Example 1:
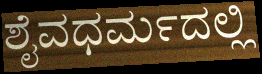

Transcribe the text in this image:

ಶೈವಧರ್ಮದಲ್ಲಿ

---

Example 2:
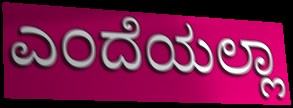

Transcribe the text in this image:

ಎಂದೆಯಲ್ಲಾ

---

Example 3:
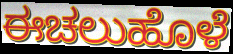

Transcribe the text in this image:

ಈಚಲುಹೊಳೆ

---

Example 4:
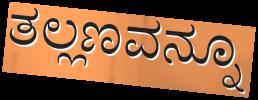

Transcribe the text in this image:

ತಲ್ಲಣವನ್ನೂ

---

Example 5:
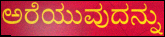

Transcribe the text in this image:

ಅರೆಯುವುದನ್ನು